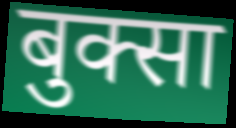
बुक्सा